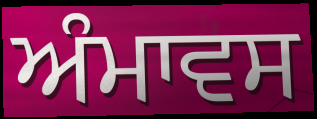
ਅੰਮਾਵਸ